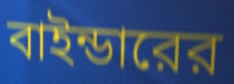
বাইন্ডারের